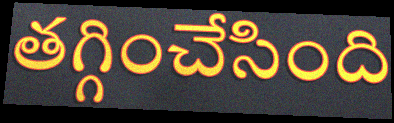
తగ్గించేసింది